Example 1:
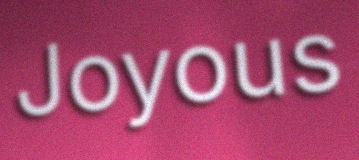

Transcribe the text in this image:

Joyous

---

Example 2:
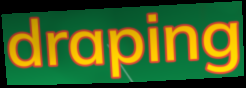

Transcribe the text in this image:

draping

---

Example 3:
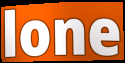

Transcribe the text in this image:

lone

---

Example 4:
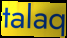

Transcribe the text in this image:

talaq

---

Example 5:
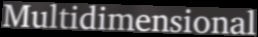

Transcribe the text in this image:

Multidimensional